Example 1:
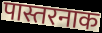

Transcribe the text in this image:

पास्तरनाक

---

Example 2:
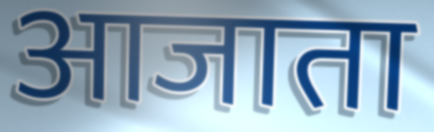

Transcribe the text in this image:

आजाता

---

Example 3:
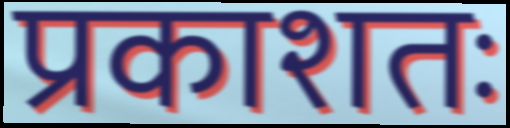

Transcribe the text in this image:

प्रकाशतः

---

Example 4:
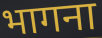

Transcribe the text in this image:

भागना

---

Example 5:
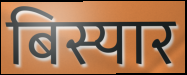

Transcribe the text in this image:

बिस्यार